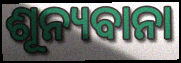
ଶୂନ୍ୟବାନା